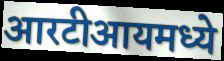
आरटीआयमध्ये